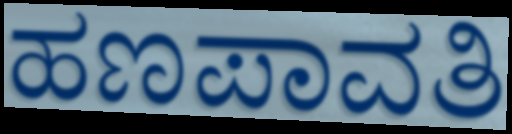
ಹಣಪಾವತಿ